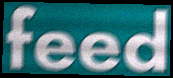
feed